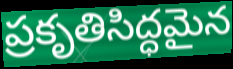
ప్రకృతిసిద్ధమైన